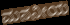
ಮನನೀಯ